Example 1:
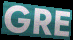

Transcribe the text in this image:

GRE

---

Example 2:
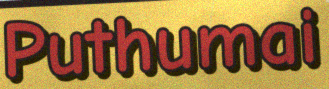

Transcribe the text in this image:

Puthumai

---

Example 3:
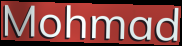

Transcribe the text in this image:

Mohmad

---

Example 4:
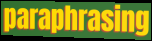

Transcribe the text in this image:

paraphrasing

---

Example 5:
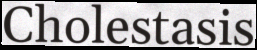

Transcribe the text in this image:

Cholestasis